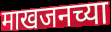
माखजनच्या